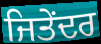
ਜਿਤੇਂਦਰ